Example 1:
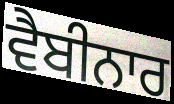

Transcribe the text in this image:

ਵੈਬੀਨਾਰ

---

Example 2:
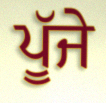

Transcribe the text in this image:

ਪੂੱਜੇ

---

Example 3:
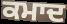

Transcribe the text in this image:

ਕਮਾਦ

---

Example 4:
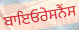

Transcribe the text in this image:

ਬਾਇਓਰੇਸਨੈਂਸ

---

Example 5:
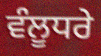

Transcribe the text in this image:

ਵੰਲੂਧਰੇ